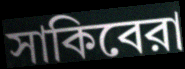
সাকিবেরা